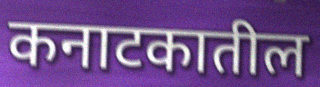
कनाटकातील